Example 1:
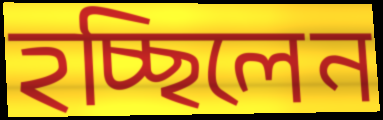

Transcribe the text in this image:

হচ্ছিলেন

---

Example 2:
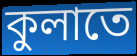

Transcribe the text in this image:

কুলাতে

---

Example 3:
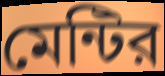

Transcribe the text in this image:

মেন্টির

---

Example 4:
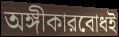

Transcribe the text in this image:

অঙ্গীকারবোধই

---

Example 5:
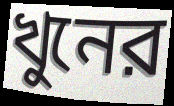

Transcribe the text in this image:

খুনের